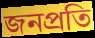
জনপ্রতি